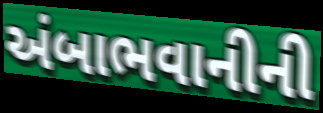
અંબાભવાનીની